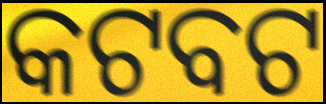
କଟବଟ